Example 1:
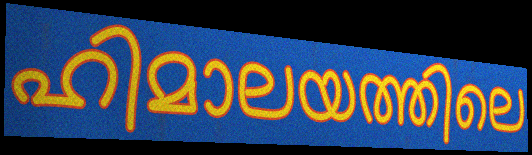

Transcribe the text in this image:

ഹിമാലയത്തിലെ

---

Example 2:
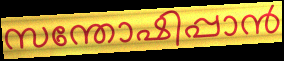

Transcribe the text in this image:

സന്തോഷിപ്പാൻ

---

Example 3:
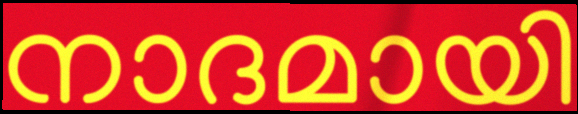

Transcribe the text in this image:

നാദമായി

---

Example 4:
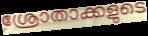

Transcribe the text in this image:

ശ്രോതാക്കളുടെ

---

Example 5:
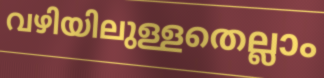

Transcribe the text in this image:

വഴിയിലുള്ളതെല്ലാം